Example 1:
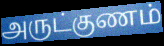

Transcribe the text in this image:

அருட்குணம்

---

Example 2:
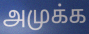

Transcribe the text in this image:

அமுக்க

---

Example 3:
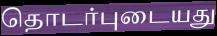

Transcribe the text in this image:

தொடர்புடையது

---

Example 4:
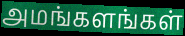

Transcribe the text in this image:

அமங்களங்கள்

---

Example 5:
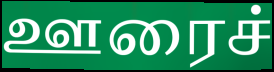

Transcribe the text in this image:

ஊரைச்